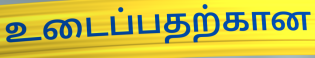
உடைப்பதற்கான